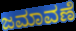
ಜಮಾವಣೆ